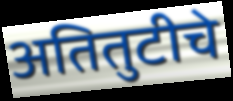
अतितुटीचे